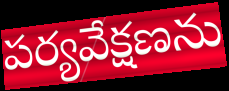
పర్యవేక్షణను